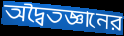
অদ্বৈতজ্ঞানের